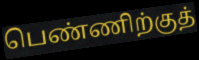
பெண்ணிற்குத்